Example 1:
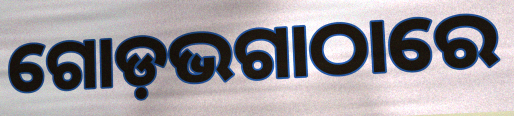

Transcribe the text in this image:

ଗୋଡ଼ଭଗାଠାରେ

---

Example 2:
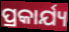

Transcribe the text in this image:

ପ୍ରକାର୍ଯ୍ୟ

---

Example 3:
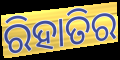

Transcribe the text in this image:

ରିହାତିର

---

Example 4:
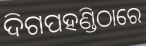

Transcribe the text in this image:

ଦିଗପହଣ୍ଡିଠାରେ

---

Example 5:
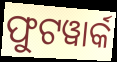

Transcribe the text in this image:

ଫୁଟୱାର୍କ